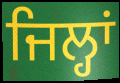
ਜਿਲ੍ਹਾਂ